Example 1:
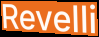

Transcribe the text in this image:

Revelli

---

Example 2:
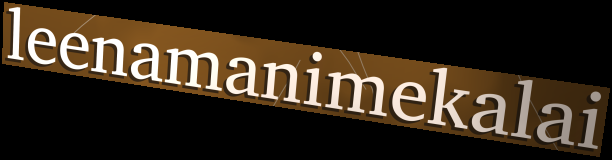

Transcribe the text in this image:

leenamanimekalai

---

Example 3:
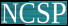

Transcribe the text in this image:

NCSP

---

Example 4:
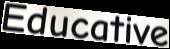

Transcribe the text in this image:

Educative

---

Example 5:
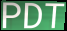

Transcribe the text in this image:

PDT